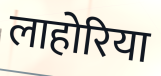
लाहोरिया